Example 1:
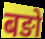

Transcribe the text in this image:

बङो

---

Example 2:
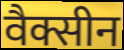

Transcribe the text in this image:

वैक्सीन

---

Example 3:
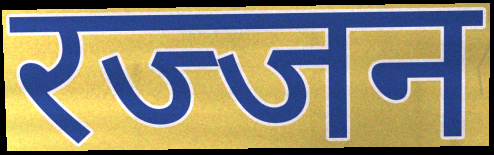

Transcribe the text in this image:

रज्जन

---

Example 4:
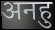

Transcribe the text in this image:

अनहु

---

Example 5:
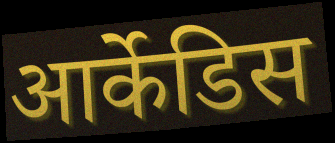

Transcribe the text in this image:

आर्केडिस